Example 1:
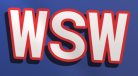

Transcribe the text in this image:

WSW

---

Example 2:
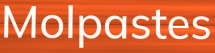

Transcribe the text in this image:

Molpastes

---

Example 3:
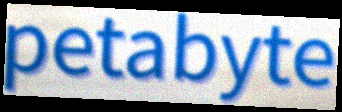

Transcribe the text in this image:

petabyte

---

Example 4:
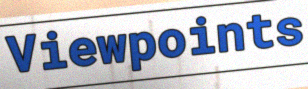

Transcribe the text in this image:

Viewpoints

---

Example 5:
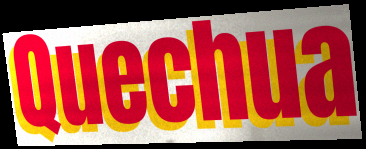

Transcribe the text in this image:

Quechua